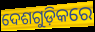
ଦେଶଗୁଡ଼ିକରେ